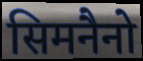
सिमनैनो